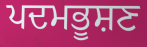
ਪਦਮਭੂਸ਼ਣ